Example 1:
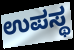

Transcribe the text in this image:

ಉಪಸ್ಥ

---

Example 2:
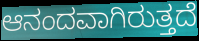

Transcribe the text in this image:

ಆನಂದವಾಗಿರುತ್ತದೆ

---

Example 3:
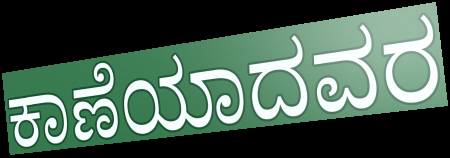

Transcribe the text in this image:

ಕಾಣೆಯಾದವರ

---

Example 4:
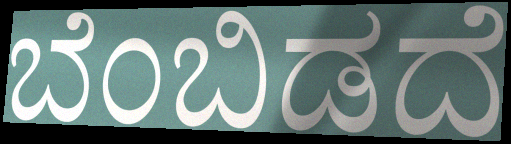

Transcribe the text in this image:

ಬೆಂಬಿಡದೆ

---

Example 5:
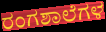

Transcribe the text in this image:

ರಂಗಶಾಲೆಗಳ